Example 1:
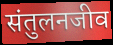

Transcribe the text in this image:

संतुलनजीव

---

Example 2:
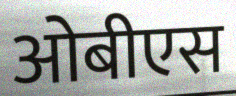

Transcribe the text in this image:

ओबीएस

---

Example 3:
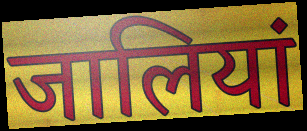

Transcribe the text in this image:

जालियां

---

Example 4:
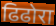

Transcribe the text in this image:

ढिढोरा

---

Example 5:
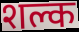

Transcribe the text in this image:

शल्क